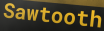
Sawtooth